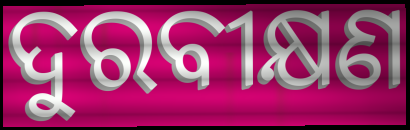
ଦୁରବୀକ୍ଷଣ